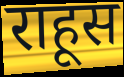
राहूस